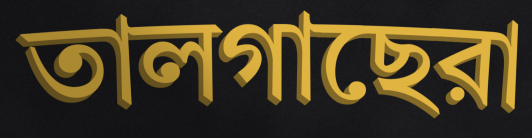
তালগাছেরা